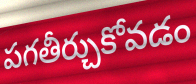
పగతీర్చుకోవడం